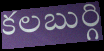
కలబుర్గి